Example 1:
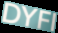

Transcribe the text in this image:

DYFI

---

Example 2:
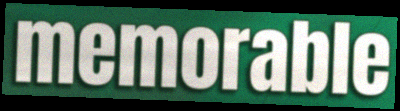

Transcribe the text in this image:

memorable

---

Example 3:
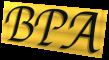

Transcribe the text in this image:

BPA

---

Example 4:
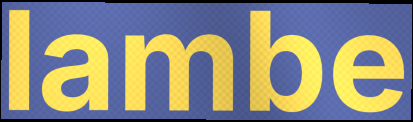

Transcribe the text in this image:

lambe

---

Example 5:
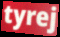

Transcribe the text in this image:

tyrej